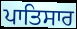
ਪਾਤਿਸਾਰ